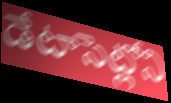
డేటాసెట్లోని